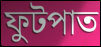
ফুটপাত